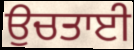
ਉਚਤਾਈ